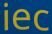
iec